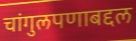
चांगुलपणाबद्दल